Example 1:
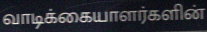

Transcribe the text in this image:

வாடிக்கையாளர்களின்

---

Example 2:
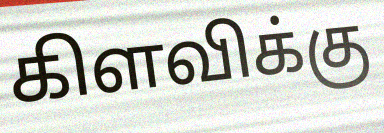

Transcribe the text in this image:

கிளவிக்கு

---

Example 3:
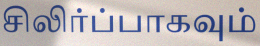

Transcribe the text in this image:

சிலிர்ப்பாகவும்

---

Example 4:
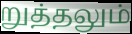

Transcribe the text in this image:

றுத்தலும்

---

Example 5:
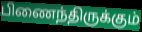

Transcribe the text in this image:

பிணைந்திருக்கும்